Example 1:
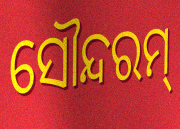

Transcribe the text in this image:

ସୌନ୍ଦରମ୍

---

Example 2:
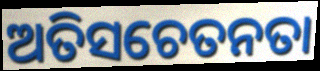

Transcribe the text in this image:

ଅତିସଚେତନତା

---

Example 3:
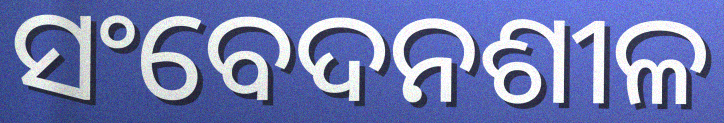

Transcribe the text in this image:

ସଂବେଦନଶୀଳ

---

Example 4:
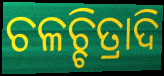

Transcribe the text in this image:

ଚଳଚ୍ଚିତ୍ରାଦି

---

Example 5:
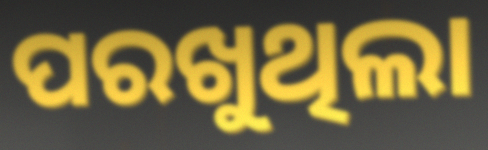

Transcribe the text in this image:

ପରଖୁଥିଲା